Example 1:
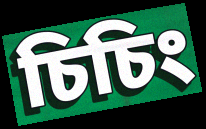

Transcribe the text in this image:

চিচিং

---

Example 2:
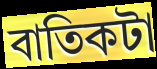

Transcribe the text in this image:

বাতিকটা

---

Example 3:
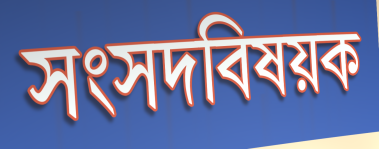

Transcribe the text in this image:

সংসদবিষয়ক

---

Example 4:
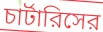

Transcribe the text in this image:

চার্টারিসের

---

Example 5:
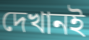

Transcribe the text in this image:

দেখানই